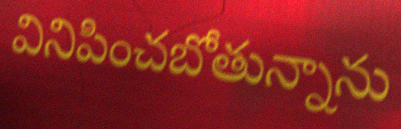
వినిపించబోతున్నాను